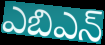
ఎబిఎన్